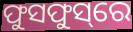
ଫୁସଫୁସ୍‌ରେ